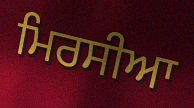
ਮਿਰਸੀਆ